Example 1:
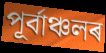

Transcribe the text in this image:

পূৰ্বাঞ্চলৰ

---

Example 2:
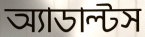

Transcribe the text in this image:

অ্যাডাল্টস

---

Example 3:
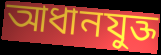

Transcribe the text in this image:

আধানযুক্ত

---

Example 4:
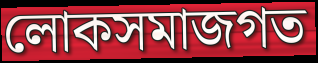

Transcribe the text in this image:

লোকসমাজগত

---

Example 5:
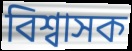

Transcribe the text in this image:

বিশ্বাসক